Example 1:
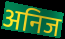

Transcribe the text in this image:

अनिज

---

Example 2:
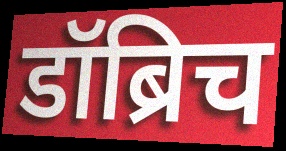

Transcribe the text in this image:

डॉब्रिच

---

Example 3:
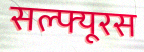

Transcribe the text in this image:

सल्फ्यूरस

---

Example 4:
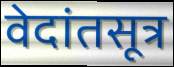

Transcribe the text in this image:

वेदांतसूत्र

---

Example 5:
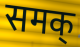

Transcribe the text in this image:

समक्